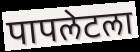
पापलेटला